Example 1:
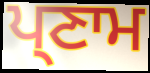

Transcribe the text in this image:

ਪ੍ਣਾਮ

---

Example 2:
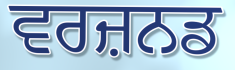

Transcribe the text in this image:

ਵਰਜ਼ਨਡ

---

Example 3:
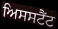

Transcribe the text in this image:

ਅਿਸਸਟੈਂਟ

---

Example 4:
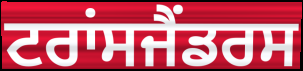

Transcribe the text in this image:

ਟਰਾਂਸਜੈਂਡਰਸ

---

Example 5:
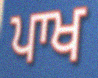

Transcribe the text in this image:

ਪਾਖ